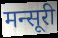
मन्सूरी